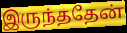
இருந்ததேன்